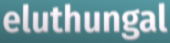
eluthungal